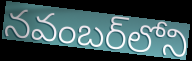
నవంబర్‌లోని